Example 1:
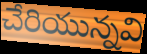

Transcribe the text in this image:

చేరియున్నవి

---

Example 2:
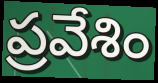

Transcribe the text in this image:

ప్రవేశిం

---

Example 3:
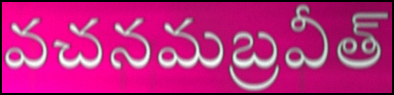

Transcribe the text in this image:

వచనమబ్రవీత్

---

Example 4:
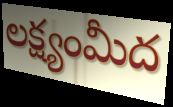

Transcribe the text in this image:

లక్ష్యంమీద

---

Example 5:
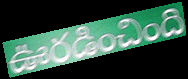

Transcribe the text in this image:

ఊరడించింది